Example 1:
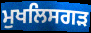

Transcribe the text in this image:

ਮੁਖਲਿਸਗੜ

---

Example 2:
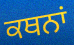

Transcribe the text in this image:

ਕਥਨਾਂ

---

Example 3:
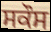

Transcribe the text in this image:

ਸਕੌਸ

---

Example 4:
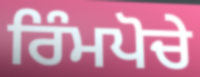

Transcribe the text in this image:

ਰਿੰਮਪੋਚੇ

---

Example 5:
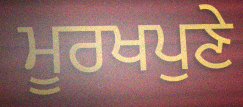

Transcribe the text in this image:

ਮੂਰਖਪੁਣੇ